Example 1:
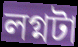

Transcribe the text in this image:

লগ্নটা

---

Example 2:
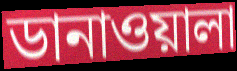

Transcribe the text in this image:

ডানাওয়ালা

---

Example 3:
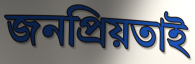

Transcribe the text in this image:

জনপ্রিয়তাই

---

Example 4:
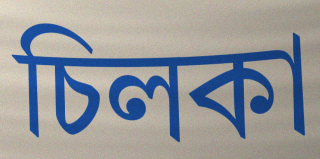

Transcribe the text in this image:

চিলকা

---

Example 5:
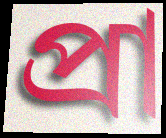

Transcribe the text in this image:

প্রা